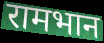
रामभान